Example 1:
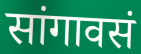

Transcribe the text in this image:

सांगावसं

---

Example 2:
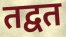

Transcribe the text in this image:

तद्वत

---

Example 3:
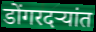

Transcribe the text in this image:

डोंगरदऱ्यांत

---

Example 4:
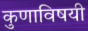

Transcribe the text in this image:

कुणाविषयी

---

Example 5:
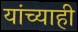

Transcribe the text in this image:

यांच्याही